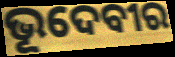
ଭୂଦେବୀର